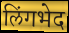
लिंगभेद